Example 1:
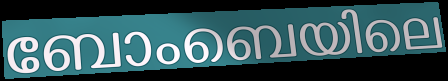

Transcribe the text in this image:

ബോംബെയിലെ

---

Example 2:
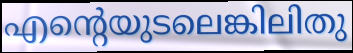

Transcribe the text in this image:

എന്റെയുടലെങ്കിലിതു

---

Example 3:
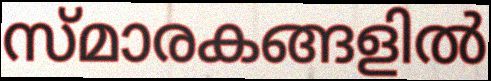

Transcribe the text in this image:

സ്മാരകങ്ങളിൽ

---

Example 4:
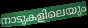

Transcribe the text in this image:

നാടുകളിലെയും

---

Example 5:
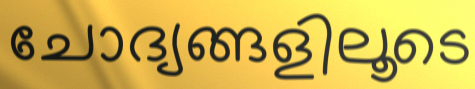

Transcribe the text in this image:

ചോദ്യങ്ങളിലൂടെ